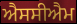
ਐਸਸੀਐਮ